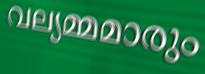
വല്യമ്മമാരും